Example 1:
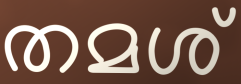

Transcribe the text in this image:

തമശ്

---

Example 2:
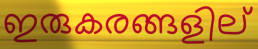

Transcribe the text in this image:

ഇരുകരങ്ങളില്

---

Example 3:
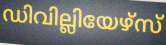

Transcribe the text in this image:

ഡിവില്ലിയേഴ്സ്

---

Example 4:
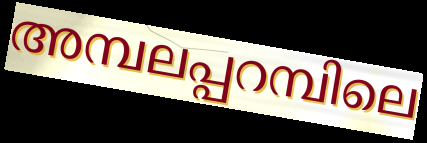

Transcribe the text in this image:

അമ്പലപ്പറമ്പിലെ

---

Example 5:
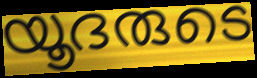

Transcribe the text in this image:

യൂദരുടെ